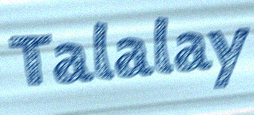
Talalay